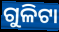
ଗୁଳିଟା